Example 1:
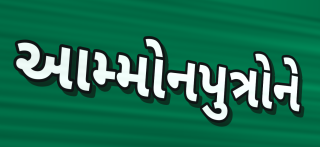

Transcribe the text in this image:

આમ્મોનપુત્રોને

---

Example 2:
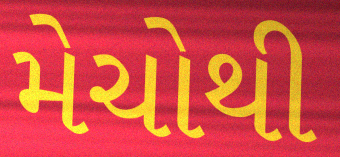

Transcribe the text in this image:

મેચોથી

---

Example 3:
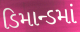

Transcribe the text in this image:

ડિમાન્ડમાં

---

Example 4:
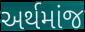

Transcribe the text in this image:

અર્થમાંજ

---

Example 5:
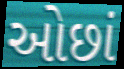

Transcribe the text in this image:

ઓછાં